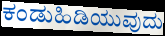
ಕಂಡುಹಿಡಿಯುವುದು